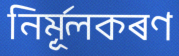
নিৰ্মূলকৰণ